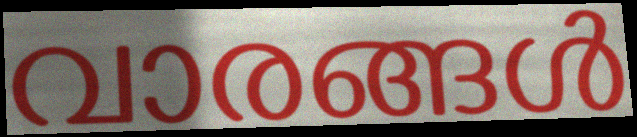
വാരങ്ങൾ